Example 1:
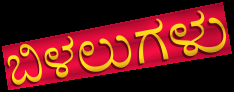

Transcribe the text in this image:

ಬಿಳಲುಗಳು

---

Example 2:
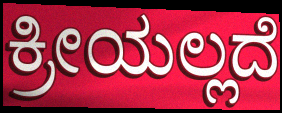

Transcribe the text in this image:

ಕ್ರೀಯಲ್ಲದೆ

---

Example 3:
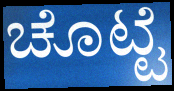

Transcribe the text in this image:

ಚೊಟ್ಟೆ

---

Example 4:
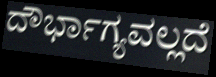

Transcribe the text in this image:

ದೌರ್ಭಾಗ್ಯವಲ್ಲದೆ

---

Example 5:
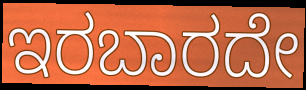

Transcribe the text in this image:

ಇರಬಾರದೇ